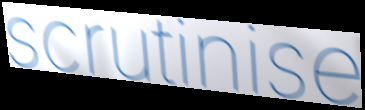
scrutinise